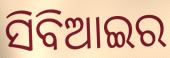
ସିବିଆଇର